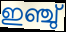
ഇഞ്ചു്